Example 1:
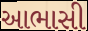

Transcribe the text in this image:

આભાસી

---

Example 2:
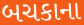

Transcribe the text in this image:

બચકાના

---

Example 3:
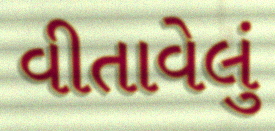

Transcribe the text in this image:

વીતાવેલું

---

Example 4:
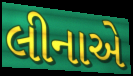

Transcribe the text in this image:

લીનાએ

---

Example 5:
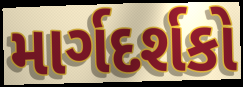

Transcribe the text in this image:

માર્ગદર્શકો